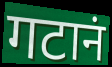
गटानं